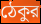
ঠেকুর